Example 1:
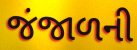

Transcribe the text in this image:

જંજાળની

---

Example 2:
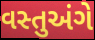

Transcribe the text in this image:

વસ્તુઅંગે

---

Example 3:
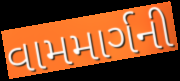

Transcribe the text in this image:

વામમાર્ગની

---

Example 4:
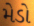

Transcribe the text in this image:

મેડો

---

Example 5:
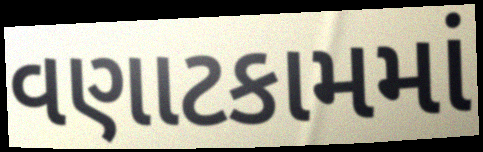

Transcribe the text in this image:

વણાટકામમાં